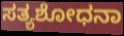
ಸತ್ಯಶೋಧನಾ